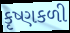
કૃષ્ણકળી